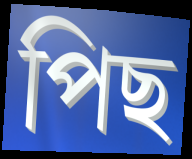
পিছ